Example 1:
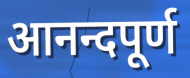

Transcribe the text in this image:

आनन्दपूर्ण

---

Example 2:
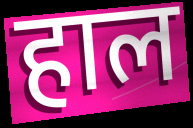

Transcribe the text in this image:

हाल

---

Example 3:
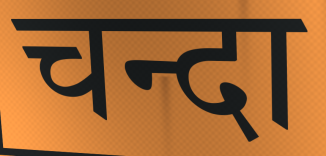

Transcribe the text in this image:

चन्दा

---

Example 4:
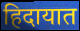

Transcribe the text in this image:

हिदायात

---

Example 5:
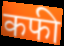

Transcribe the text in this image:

कफी